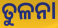
ତୁଳନା